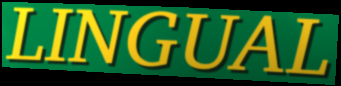
LINGUAL